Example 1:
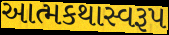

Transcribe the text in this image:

આત્મકથાસ્વરૂપ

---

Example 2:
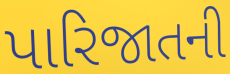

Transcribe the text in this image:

પારિજાતની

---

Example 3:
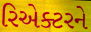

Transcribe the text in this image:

રિએક્ટરને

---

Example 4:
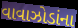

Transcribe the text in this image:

વાવાઝોડાંના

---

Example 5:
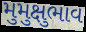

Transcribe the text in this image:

મુમુક્ષુભાવ